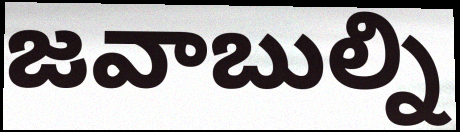
జవాబుల్ని